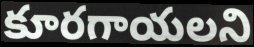
కూరగాయలని